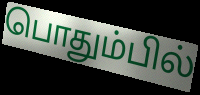
பொதும்பில்